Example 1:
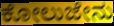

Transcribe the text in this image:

ಕೋಲುಜೇನು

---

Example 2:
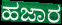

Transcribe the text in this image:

ಹಜಾರ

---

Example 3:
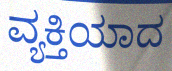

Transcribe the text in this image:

ವ್ಯಕ್ತಿಯಾದ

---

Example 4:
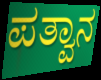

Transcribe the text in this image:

ಪತ್ವಾನ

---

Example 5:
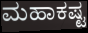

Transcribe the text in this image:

ಮಹಾಕಷ್ಟ